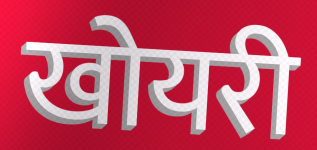
खोयरी